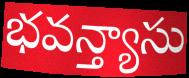
భవన్త్యాసు